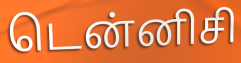
டென்னிசி